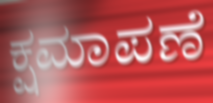
ಕ್ಷಮಾಪಣೆ